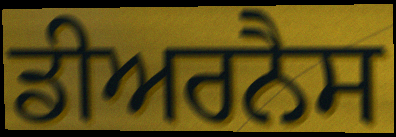
ਡੀਅਰਨੈਸ